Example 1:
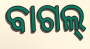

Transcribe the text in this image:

ବାଗଲ୍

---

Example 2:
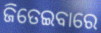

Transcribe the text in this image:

ଜିତେଇବାରେ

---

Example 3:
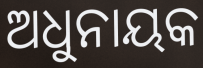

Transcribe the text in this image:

ଅଧୁନାୟକ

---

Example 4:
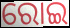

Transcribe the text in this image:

ରୋଇ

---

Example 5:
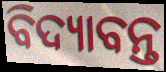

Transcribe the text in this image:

ବିଦ୍ୟାବନ୍ତ